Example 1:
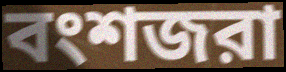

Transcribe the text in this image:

বংশজরা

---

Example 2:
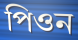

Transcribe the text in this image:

পিওন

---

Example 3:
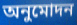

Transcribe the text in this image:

অনুমোদন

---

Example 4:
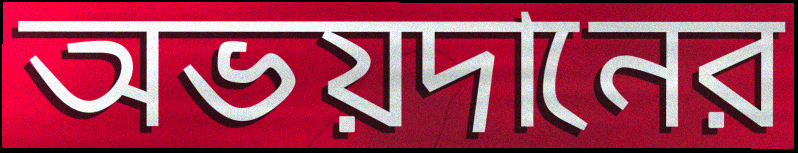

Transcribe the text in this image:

অভয়দানের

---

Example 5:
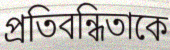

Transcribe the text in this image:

প্রতিবন্ধিতাকে